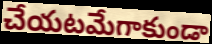
చేయటమేగాకుండా